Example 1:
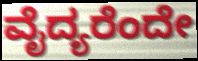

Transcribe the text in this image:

ವೈದ್ಯರೆಂದೇ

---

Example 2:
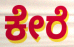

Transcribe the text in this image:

ಕೇರೆ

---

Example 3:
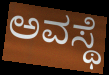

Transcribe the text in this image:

ಅವಸ್ಥೆ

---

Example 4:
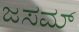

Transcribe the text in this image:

ಜಸಮ್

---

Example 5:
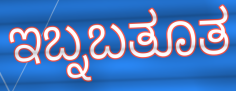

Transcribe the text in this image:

ಇಬ್ನಬತೂತ